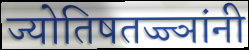
ज्योतिषतज्ज्ञांनी